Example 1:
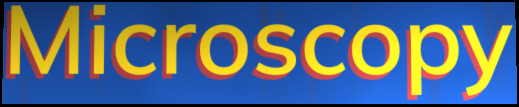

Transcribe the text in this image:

Microscopy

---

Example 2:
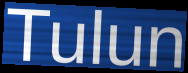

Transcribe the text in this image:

Tulun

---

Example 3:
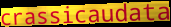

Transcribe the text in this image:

crassicaudata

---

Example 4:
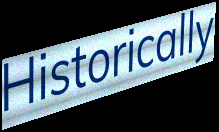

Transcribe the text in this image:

Historically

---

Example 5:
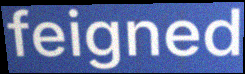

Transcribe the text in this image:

feigned